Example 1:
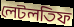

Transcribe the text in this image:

লেটলতিফ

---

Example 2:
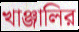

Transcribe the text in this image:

খাঞ্জালির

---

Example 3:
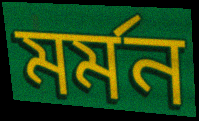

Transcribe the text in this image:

মর্মন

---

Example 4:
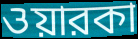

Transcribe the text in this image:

ওয়ারকা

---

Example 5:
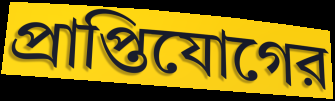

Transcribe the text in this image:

প্রাপ্তিযোগের